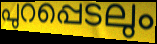
പുറപ്പെടലും